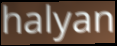
halyan